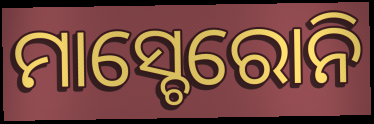
ମାସ୍ଚେରୋନି